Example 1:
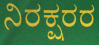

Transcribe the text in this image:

ನಿರಕ್ಷರರ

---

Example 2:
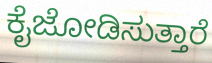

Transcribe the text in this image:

ಕೈಜೋಡಿಸುತ್ತಾರೆ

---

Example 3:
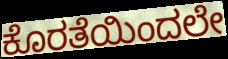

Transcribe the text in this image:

ಕೊರತೆಯಿಂದಲೇ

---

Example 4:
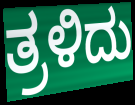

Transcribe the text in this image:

ತ್ರಳಿದು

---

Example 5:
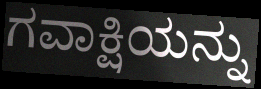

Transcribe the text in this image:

ಗವಾಕ್ಷಿಯನ್ನು